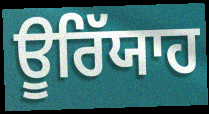
ਊਰਿੱਯਾਹ